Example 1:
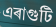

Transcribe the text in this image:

এৰাগুটি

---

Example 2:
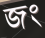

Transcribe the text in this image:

জং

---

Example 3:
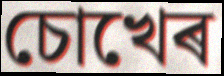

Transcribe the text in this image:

চোখেৰ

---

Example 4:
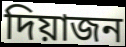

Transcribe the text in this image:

দিয়াজন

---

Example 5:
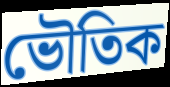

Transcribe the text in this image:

ভৌতিক